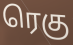
ரெகு